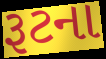
રૂટના